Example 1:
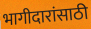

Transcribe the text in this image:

भागीदारांसाठी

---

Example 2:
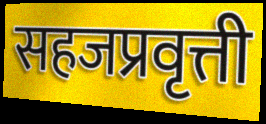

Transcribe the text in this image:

सहजप्रवृत्ती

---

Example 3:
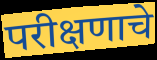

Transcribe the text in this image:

परीक्षणाचे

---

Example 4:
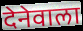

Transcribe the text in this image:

देनेवाला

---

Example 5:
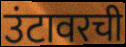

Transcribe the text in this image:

उंटावरची